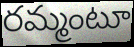
రమ్మంటూ